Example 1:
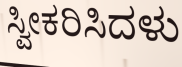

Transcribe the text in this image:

ಸ್ವೀಕರಿಸಿದಳು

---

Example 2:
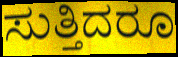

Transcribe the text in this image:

ಸುತ್ತಿದರೂ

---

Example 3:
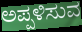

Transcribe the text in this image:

ಅಪ್ಪಳಿಸುವ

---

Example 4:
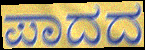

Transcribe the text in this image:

ಪಾದದ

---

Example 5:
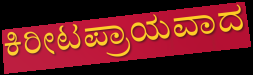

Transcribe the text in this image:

ಕಿರೀಟಪ್ರಾಯವಾದ